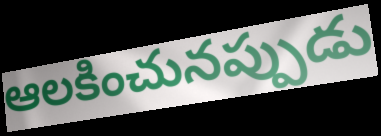
ఆలకించునప్పుడు